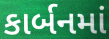
કાર્બનમાં